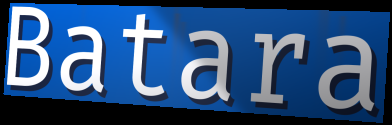
Batara